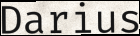
Darius